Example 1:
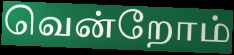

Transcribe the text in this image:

வென்றோம்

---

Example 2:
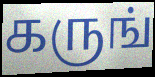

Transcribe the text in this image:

கருங்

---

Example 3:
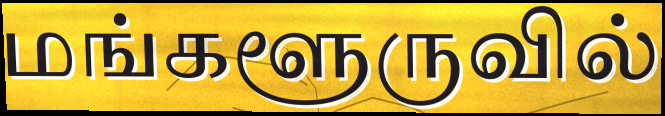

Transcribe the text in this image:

மங்களூருவில்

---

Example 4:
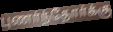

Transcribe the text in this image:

புணர்ந்தோர்க்கு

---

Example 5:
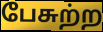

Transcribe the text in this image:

பேசுற்ற